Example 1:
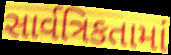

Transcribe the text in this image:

સાર્વત્રિકતામાં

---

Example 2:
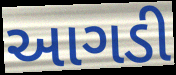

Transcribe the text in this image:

આગડી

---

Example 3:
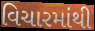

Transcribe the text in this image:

વિચારમાંથી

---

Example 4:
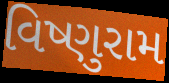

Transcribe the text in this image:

વિષ્ણુરામ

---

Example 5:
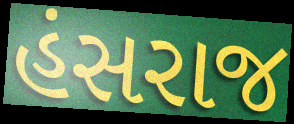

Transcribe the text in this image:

હંસરાજ